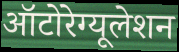
ऑटोरेग्यूलेशन